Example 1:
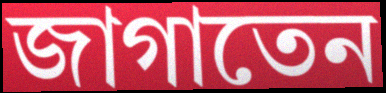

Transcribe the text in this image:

জাগাতেন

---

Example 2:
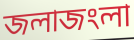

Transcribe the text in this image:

জলাজংলা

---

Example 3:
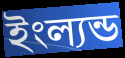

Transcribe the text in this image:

ইংল্যন্ড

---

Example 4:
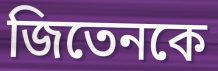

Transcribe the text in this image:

জিতেনকে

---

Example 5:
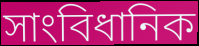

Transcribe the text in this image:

সাংবিধানিক